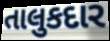
તાલુકદાર